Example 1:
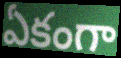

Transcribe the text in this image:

ఏకంగా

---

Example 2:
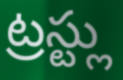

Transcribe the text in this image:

ట్రస్ట్లు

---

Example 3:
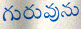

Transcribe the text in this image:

గురువును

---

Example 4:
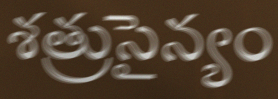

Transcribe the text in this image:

శత్రుసైన్యం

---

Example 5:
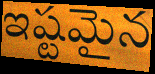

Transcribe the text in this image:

ఇష్టమైన